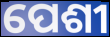
ପେଶୀ